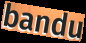
bandu